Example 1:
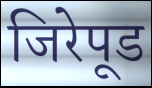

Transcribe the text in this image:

जिरेपूड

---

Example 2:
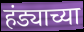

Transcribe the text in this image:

हंड्याच्या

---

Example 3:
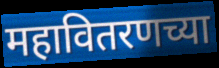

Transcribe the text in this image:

महावितरणच्या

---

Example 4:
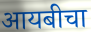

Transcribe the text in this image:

आयबीचा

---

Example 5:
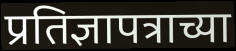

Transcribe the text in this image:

प्रतिज्ञापत्राच्या